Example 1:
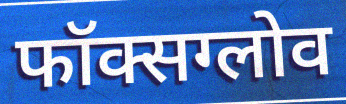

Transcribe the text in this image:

फॉक्सग्लोव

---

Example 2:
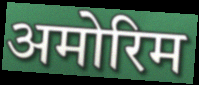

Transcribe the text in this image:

अमोरिम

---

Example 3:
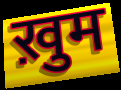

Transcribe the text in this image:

ख़ुम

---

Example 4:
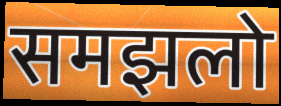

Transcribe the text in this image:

समझलो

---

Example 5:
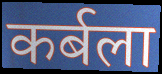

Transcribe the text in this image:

कर्बला